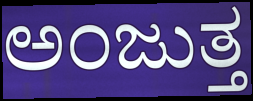
ಅಂಜುತ್ತ